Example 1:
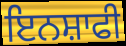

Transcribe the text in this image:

ਇਨਸ਼ਾਫੀ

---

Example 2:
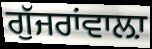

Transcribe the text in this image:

ਗੁੱਜਰਾਂਵਾਲ਼ਾ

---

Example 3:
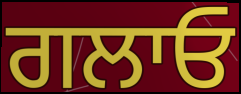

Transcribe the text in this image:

ਗਲਾਓ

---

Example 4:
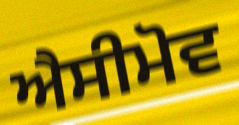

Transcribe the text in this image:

ਐਸੀਮੋਵ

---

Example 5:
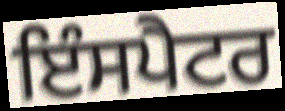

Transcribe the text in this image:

ਇੰਸਪੈਟਰ